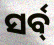
ସର୍ବ୍